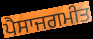
ਪੈਸਾਜਗਮੀਤ